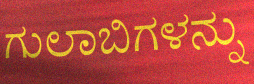
ಗುಲಾಬಿಗಳನ್ನು